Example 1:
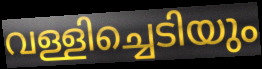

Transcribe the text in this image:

വള്ളിച്ചെടിയും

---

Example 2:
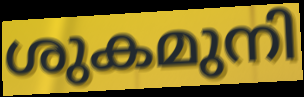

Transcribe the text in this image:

ശുകമുനി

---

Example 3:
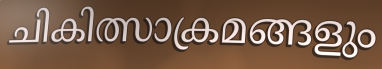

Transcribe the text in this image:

ചികിത്സാക്രമങ്ങളും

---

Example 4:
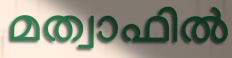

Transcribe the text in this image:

മത്വാഫിൽ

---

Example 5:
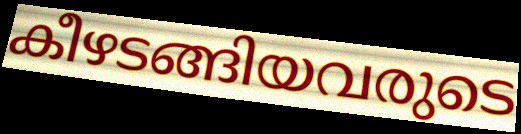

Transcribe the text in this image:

കീഴടങ്ങിയവരുടെ